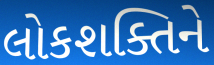
લોકશક્તિને